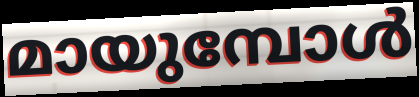
മായുമ്പോൾ